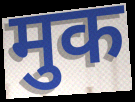
मुक